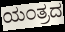
ಯಂತ್ರದ